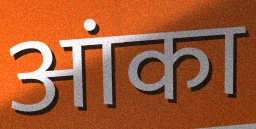
आंका